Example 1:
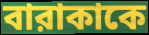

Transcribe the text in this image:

বারাকাকে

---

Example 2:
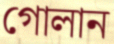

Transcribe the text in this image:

গোলান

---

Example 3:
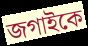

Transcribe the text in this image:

জগাইকে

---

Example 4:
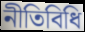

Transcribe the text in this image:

নীতিবিধি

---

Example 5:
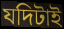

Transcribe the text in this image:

যদিটাই